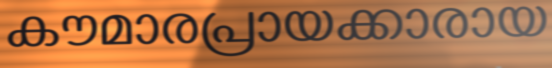
കൗമാരപ്രായക്കാരായ